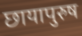
छायापुरुष